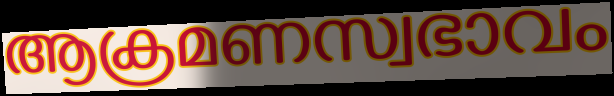
ആക്രമണസ്വഭാവം